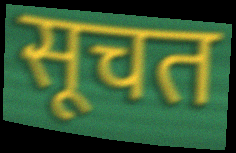
सूचत